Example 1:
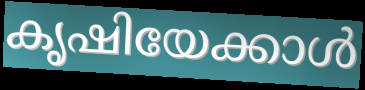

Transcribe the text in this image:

കൃഷിയേക്കാൾ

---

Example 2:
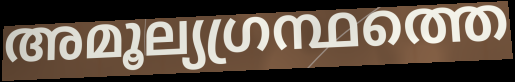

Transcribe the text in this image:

അമൂല്യഗ്രന്ഥത്തെ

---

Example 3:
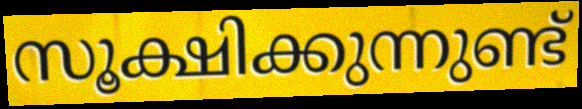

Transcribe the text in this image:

സൂക്ഷിക്കുന്നുണ്ട്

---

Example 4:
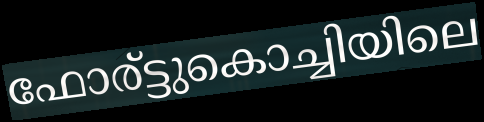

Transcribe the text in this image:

ഫോര്ട്ടുകൊച്ചിയിലെ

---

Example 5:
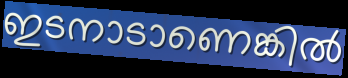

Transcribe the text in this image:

ഇടനാടാണെങ്കിൽ